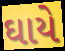
ઘાયે